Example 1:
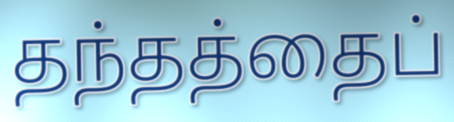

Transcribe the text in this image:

தந்தத்தைப்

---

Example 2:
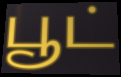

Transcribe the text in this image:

பூட்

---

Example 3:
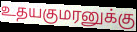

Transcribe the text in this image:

உதயகுமரனுக்கு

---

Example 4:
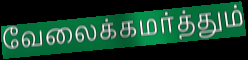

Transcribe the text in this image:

வேலைக்கமர்த்தும்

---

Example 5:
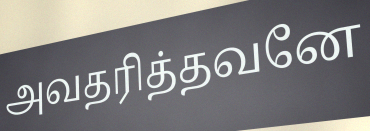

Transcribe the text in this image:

அவதரித்தவனே